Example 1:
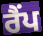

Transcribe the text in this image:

ਰੈਂਪ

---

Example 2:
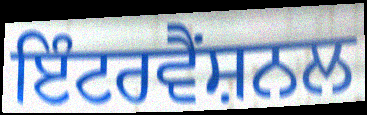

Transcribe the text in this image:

ਇੰਟਰਵੈਂਸ਼ਨਲ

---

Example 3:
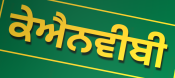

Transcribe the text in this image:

ਕੇਐਨਵੀਬੀ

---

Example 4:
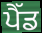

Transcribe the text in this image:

ਪੈੱਡ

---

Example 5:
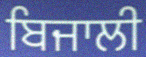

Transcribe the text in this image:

ਬਿਜਾਲੀ